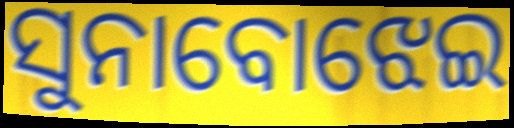
ସୁନାବୋଝେଇ